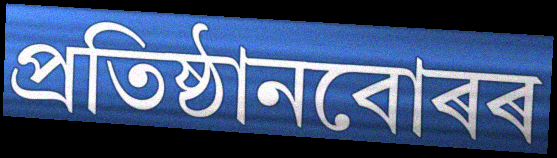
প্ৰতিষ্ঠানবোৰৰ